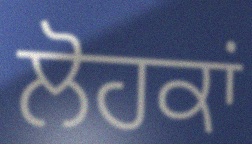
ਲੋਹਕਾਂ